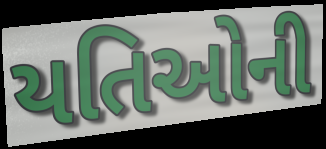
યતિઓની